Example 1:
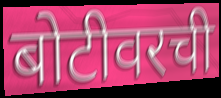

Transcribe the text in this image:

बोटीवरची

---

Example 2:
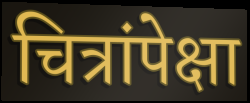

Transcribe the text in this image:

चित्रांपेक्षा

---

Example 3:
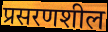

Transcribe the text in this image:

प्रसरणशील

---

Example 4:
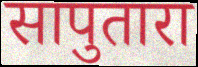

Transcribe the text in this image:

सापुतारा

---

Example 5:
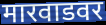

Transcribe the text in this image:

मारवाडवर